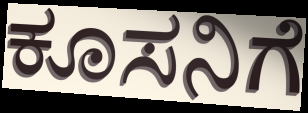
ಕೂಸನಿಗೆ